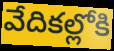
వేదికల్లోకి